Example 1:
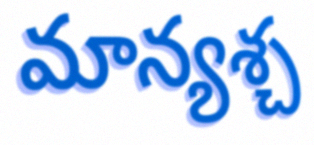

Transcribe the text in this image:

మాన్యశ్చ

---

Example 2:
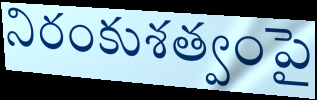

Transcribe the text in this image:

నిరంకుశత్వంపై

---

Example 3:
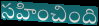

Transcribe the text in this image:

సహించింది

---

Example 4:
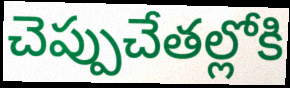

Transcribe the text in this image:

చెప్పుచేతల్లోకి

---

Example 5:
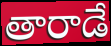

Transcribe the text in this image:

తారాడే